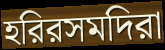
হরিরসমদিরা